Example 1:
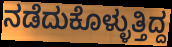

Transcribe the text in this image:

ನಡೆದುಕೊಳ್ಳುತ್ತಿದ್ದ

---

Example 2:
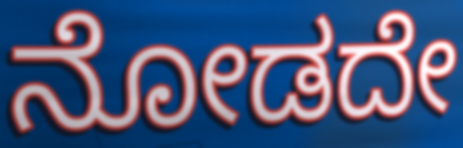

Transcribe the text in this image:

ನೋಡದೇ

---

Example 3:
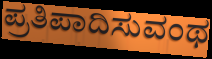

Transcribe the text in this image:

ಪ್ರತಿಪಾದಿಸುವಂಥ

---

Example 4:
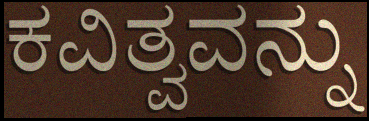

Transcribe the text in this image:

ಕವಿತ್ವವನ್ನು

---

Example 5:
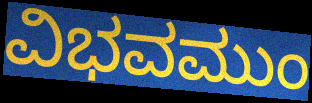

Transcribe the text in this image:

ವಿಭವಮುಂ